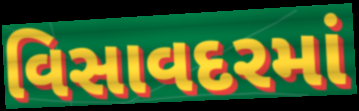
વિસાવદરમાં